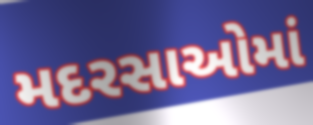
મદરસાઓમાં